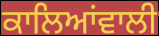
ਕਾਲਿਆਂਵਾਲੀ